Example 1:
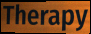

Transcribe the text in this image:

Therapy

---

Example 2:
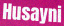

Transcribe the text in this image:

Husayni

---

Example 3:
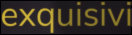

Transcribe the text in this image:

exquisivi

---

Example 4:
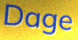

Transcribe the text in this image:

Dage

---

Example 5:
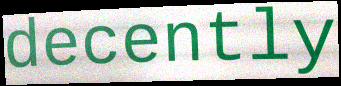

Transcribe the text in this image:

decently